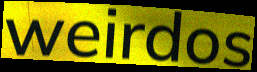
weirdos